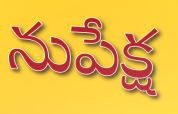
నుపేక్ష